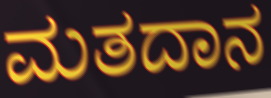
ಮತದಾನ